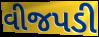
વીજપડી